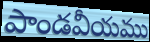
పాండవీయము